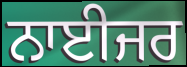
ਨਾਈਜਰ